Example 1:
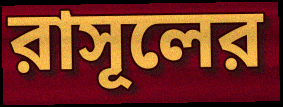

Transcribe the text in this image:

রাসূলের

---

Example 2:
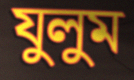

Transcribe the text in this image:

যুলুম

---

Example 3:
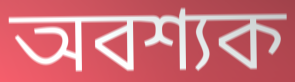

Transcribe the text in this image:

অবশ্যক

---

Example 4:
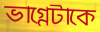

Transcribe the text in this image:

ভাগ্নেটাকে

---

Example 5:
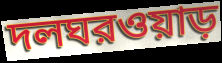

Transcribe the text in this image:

দলঘরওয়াড়